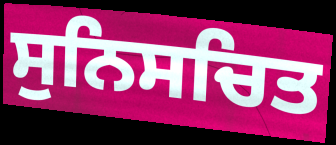
ਸੁਨਿਸਚਿਤ